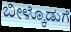
ಬೀಳ್ಕೊಡುಗೆ